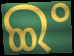
ଇଂ